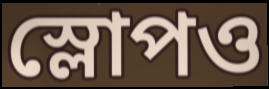
স্লোপও